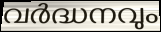
വർദ്ധനവും